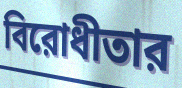
বিরোধীতার